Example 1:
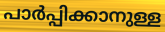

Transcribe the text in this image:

പാർപ്പിക്കാനുള്ള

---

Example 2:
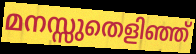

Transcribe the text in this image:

മനസ്സുതെളിഞ്ഞ്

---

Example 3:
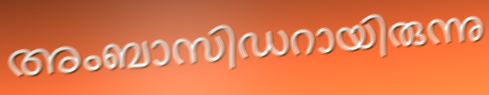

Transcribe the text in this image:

അംബാസിഡറായിരുന്നു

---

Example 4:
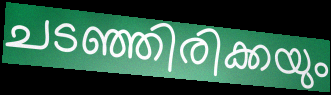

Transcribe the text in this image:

ചടഞ്ഞിരിക്കയും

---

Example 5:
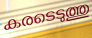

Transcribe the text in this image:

കരടെടുത്തു